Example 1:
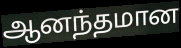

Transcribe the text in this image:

ஆனந்தமான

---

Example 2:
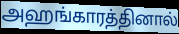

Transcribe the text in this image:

அஹங்காரத்தினால்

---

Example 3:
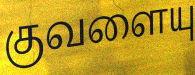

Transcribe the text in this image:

குவளையு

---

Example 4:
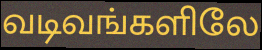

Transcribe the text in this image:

வடிவங்களிலே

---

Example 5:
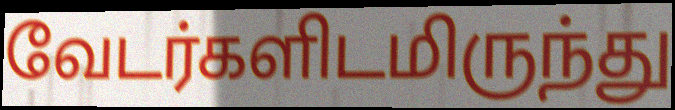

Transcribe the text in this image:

வேடர்களிடமிருந்து